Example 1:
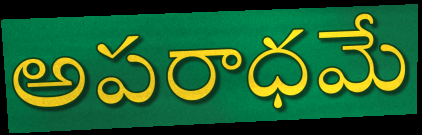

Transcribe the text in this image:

అపరాధమే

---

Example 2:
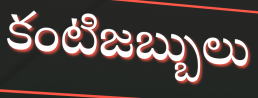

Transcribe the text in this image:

కంటిజబ్బులు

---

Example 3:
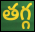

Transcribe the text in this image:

తగ్గ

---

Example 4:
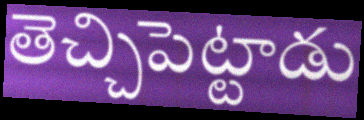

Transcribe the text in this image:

తెచ్చిపెట్టాడు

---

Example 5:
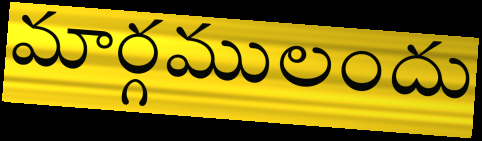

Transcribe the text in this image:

మార్గములందు